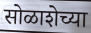
सोळाशेच्या